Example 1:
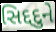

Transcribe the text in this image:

સિદ્દદુને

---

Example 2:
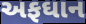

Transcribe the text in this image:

અફઘાન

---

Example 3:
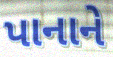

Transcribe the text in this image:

પાનાને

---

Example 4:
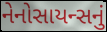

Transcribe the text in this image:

નેનોસાયન્સનું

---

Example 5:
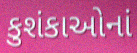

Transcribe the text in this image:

કુશંકાઓનાં